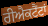
ਰੀਐਕਟੈਂਟਾਂ